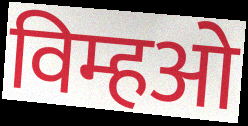
विम्हओ